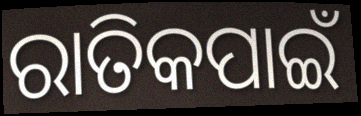
ରାତିକପାଇଁ